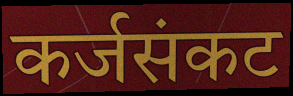
कर्जसंकट